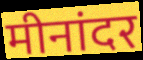
मीनांदर